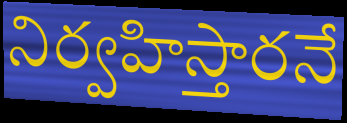
నిర్వహిస్తారనే